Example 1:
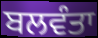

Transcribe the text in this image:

ਬਲਵੰਤਾ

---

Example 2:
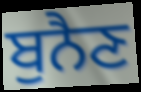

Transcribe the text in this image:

ਬੁਨੈਣ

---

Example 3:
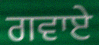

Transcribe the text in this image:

ਗਵਾਏ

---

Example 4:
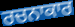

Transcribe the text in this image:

ਰਚਨਾਕਾਰ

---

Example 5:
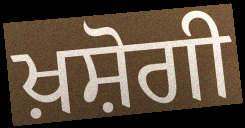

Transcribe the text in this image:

ਖ਼ਸ਼ੋਗੀ